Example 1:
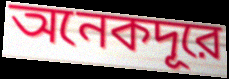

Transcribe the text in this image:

অনেকদূরে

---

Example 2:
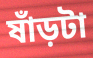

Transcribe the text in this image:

ষাঁড়টা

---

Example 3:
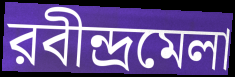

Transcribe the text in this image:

রবীন্দ্রমেলা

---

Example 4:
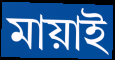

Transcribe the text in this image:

মায়াই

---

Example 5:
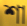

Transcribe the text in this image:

শা